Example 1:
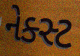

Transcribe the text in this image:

નેક્સ્ટ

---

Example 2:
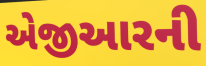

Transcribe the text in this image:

એજીઆરની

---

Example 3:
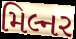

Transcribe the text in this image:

મિલ્નર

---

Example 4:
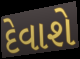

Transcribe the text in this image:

દેવાશે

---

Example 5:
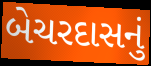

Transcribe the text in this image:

બેચરદાસનું